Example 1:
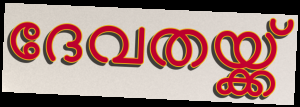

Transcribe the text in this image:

ദേവതയ്ക്ക്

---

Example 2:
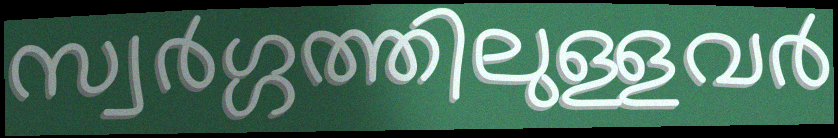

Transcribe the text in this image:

സ്വർഗ്ഗത്തിലുള്ളവർ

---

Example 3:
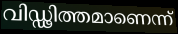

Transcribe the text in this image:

വിഡ്ഢിത്തമാണെന്ന്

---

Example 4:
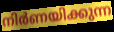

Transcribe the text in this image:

നിർണയിക്കുന്ന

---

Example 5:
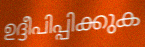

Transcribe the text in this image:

ഉദ്ദീപിപ്പിക്കുക